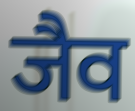
जैव